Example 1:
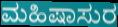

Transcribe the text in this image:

ಮಹಿಷಾಸುರ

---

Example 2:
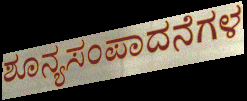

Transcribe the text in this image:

ಶೂನ್ಯಸಂಪಾದನೆಗಳ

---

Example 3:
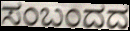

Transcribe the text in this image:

ಸಂಬಂದದ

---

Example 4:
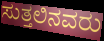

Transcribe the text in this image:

ಸುತ್ತಲಿನವರು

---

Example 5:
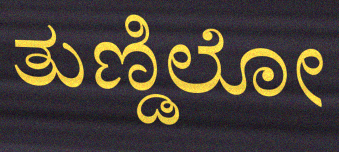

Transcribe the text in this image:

ತುಣ್ಡಿಲೋ